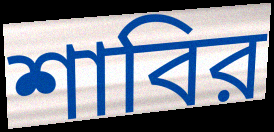
শাবির